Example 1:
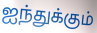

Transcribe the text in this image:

ஐந்துக்கும்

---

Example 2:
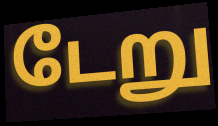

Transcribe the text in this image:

டேறு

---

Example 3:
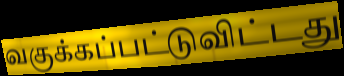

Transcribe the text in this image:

வகுக்கப்பட்டுவிட்டது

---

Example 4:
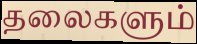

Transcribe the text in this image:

தலைகளும்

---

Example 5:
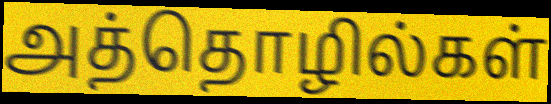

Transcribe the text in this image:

அத்தொழில்கள்